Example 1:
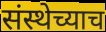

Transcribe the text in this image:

संस्थेच्याच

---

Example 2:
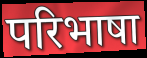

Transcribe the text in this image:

परिभाषा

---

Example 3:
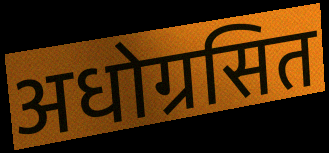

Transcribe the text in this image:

अधोग्रसित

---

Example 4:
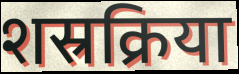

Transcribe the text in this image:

शस्रक्रिया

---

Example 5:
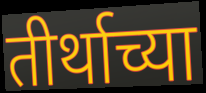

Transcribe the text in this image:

तीर्थाच्या